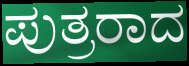
ಪುತ್ರರಾದ